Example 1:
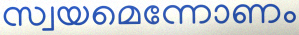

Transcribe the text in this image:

സ്വയമെന്നോണം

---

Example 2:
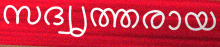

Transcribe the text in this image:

സദ്വൃത്തരായ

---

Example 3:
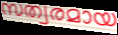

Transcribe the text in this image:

സത്വരമായ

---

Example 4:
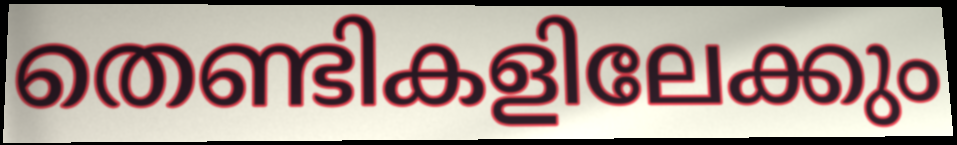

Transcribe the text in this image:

തെണ്ടികളിലേക്കും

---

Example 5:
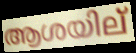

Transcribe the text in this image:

ആശയില്